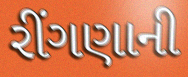
રીંગણાની